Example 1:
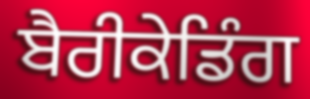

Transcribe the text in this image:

ਬੈਰੀਕੇਡਿੰਗ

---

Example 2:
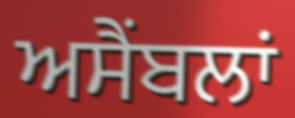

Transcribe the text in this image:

ਅਸੈਂਬਲਾਂ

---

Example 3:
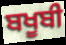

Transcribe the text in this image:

ਬਖੂਬੀ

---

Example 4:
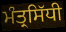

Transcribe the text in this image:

ਮੰਤ੍ਰਸਿੱਧੀ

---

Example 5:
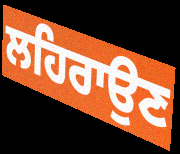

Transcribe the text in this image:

ਲਹਿਰਾਉਣ